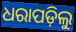
ଧରାପଡ଼ିଲୁ